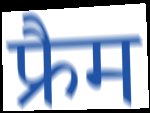
फ्रैम